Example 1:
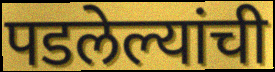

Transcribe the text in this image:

पडलेल्यांची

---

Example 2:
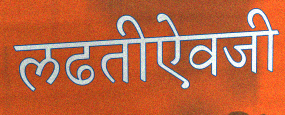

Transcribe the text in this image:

लढतीऐवजी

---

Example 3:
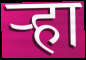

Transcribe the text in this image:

ऱ्हा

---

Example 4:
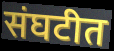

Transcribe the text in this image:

संघटीत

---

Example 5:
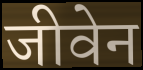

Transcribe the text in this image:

जीवेन